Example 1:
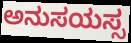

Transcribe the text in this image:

ಅನುಸಯಸ್ಸ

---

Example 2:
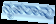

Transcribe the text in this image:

ನೃಪರಾವು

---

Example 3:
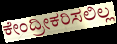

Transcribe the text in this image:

ಕೇಂದ್ರೀಕರಿಸಲಿಲ್ಲ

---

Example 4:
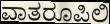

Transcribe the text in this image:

ವಾತರೂಪಿಲಿ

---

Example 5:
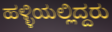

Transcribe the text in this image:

ಹಳ್ಳಿಯಲ್ಲಿದ್ದರು